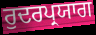
ਰੁਦਰਪ੍ਰਯਾਗ